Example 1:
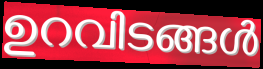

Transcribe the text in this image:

ഉറവിടങ്ങൾ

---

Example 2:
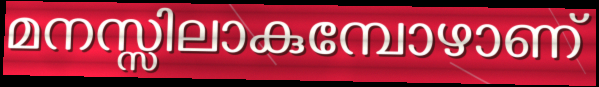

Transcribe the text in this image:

മനസ്സിലാകുമ്പോഴാണ്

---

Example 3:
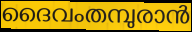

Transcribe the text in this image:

ദൈവംതമ്പുരാൻ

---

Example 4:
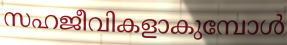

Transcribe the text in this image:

സഹജീവികളാകുമ്പോൾ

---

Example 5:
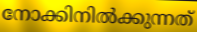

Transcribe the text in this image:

നോക്കിനിൽക്കുന്നത്